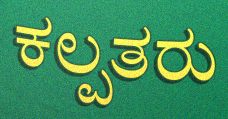
ಕಲ್ಪತರು